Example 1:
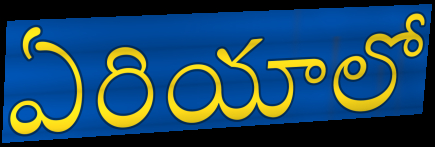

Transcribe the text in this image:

ఏరియాలో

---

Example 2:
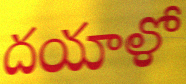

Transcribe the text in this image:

దయాళో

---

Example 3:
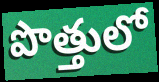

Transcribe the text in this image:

పొత్తులో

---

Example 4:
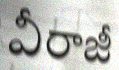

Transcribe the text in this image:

వీరాజీ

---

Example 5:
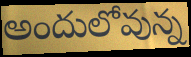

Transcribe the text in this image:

అందులోవున్న